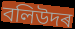
বলিউদৰ